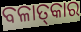
ବଳାତ୍‌କାର